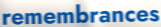
remembrances